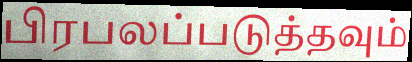
பிரபலப்படுத்தவும்